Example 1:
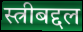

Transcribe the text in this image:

स्त्रीबद्दल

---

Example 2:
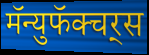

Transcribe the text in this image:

मॅन्युफॅक्चर्स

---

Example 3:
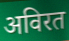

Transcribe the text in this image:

अविरत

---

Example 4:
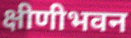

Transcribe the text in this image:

क्षीणीभवन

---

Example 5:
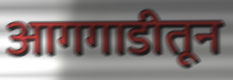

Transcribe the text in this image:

आगगाडीतून